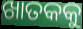
ଖାତକକୁ